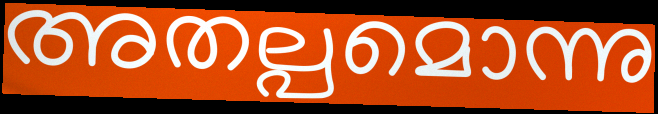
അതല്പമൊന്നു